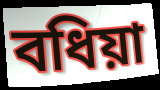
বধিয়া